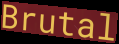
Brutal